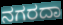
ನಗರದಾ